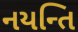
નયન્તિ